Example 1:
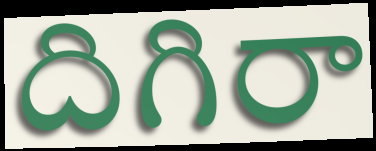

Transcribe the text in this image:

దిగిరా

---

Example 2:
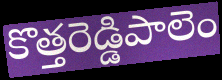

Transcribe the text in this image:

కొత్తరెడ్డిపాలెం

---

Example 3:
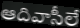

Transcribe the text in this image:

ఆదివాసీలే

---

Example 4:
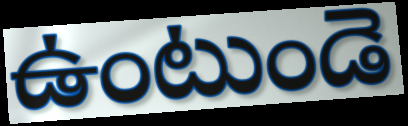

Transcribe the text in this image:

ఉంటుండె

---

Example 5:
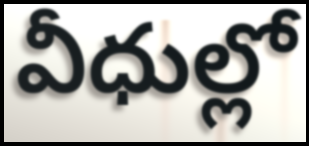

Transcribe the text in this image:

వీధుల్లో